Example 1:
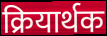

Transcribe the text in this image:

क्रियार्थक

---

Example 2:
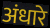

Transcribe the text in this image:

अंधारे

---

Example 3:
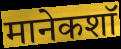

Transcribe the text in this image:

मानेकशॉ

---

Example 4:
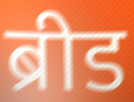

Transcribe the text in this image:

ब्रीड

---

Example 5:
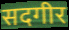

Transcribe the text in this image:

सदगीर